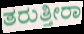
ತರುತ್ತೀರಾ